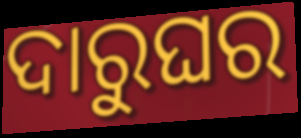
ଦାରୁଘର